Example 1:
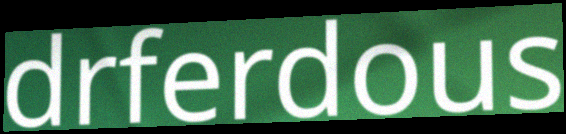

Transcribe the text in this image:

drferdous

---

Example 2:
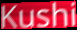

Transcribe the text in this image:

Kushi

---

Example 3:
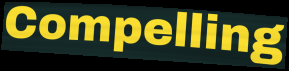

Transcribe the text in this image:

Compelling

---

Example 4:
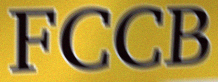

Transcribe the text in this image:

FCCB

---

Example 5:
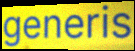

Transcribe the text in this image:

generis